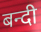
बन्दी